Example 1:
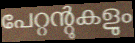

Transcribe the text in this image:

പേറ്റന്റുകളും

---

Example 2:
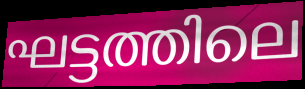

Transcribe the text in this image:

ഘട്ടത്തിലെ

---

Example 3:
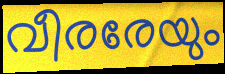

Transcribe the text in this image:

വീരരേയും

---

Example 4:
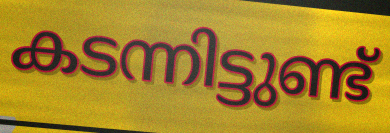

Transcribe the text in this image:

കടന്നിട്ടുണ്ട്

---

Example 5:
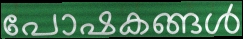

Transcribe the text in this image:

പോഷകങ്ങൾ